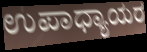
ಉಪಾಧ್ಯಾಯರ